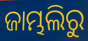
ଜାମ୍ଭଲିରୁ